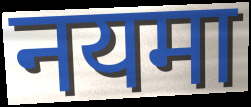
नयमा